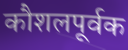
कौशलपूर्वक